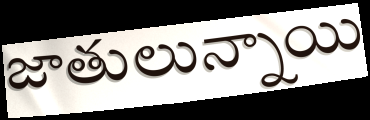
జాతులున్నాయి